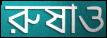
রুষাও